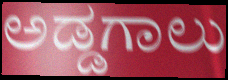
ಅಡ್ಡಗಾಲು